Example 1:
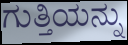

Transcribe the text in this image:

ಗುತ್ತಿಯನ್ನು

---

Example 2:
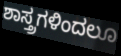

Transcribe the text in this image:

ಶಾಸ್ತ್ರಗಳಿಂದಲೂ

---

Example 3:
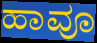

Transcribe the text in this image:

ಹಾವೂ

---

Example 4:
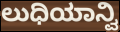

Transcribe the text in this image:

ಲುಧಿಯಾನ್ವಿ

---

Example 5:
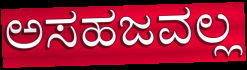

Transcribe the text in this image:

ಅಸಹಜವಲ್ಲ